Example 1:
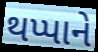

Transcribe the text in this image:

થપ્પાને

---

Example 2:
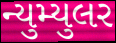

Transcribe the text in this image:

ન્યુમ્યુલર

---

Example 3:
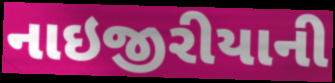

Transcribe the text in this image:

નાઇજીરીયાની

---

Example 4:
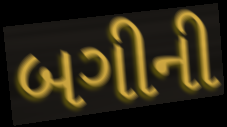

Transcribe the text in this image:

બગીની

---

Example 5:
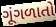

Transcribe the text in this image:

ગૂંગળાતો